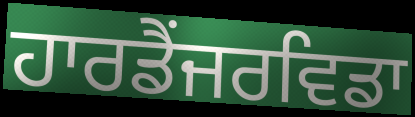
ਹਾਰਡੈਂਜਰਵਿਡਾ